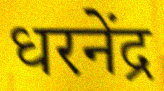
धरनेंद्र